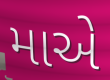
માએ